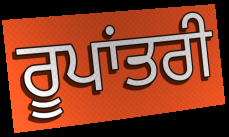
ਰੂਪਾਂਤਰੀ